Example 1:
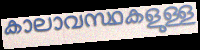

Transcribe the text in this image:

കാലാവസ്ഥകളുള്ള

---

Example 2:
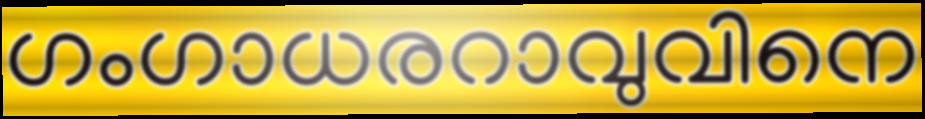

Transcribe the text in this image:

ഗംഗാധരറാവുവിനെ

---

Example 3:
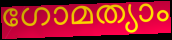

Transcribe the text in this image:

ഗോമത്യാം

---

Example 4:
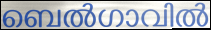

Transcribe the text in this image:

ബെൽഗാവിൽ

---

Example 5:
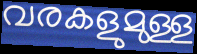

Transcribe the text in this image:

വരകളുമുള്ള